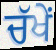
ਚੱਖੇਂ